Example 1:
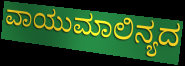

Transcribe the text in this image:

ವಾಯುಮಾಲಿನ್ಯದ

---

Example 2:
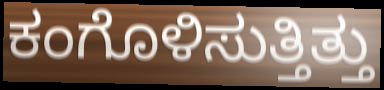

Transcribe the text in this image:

ಕಂಗೊಳಿಸುತ್ತಿತ್ತು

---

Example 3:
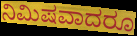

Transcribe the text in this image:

ನಿಮಿಷವಾದರೂ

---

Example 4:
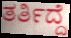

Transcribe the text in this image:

ತರ್ತಿದ್ದೆ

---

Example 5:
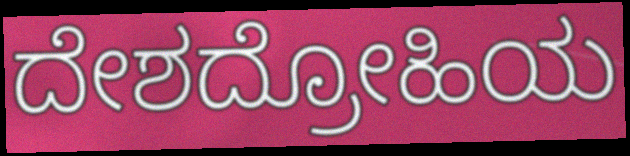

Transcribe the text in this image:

ದೇಶದ್ರೋಹಿಯ